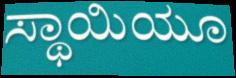
ಸ್ಥಾಯಿಯೂ